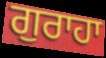
ਗੁਰਾਹਾ